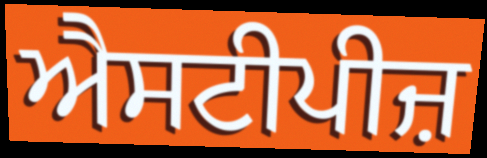
ਐਸਟੀਪੀਜ਼